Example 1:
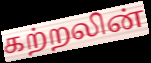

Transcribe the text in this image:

கற்றலின்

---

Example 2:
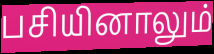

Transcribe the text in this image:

பசியினாலும்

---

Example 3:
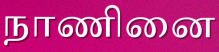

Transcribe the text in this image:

நாணினை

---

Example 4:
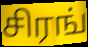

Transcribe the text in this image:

சிரங்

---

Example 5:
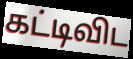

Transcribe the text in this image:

கட்டிவிட